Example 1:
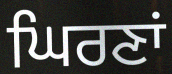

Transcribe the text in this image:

ਘਿਰਣਾਂ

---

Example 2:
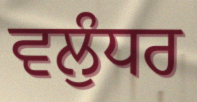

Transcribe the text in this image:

ਵਲੁੰਧਰ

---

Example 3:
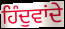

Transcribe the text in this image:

ਹਿੰਦੁਵਾਂਦੇ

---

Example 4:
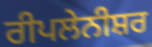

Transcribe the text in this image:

ਰੀਪਲੇਨੀਸ਼ਰ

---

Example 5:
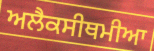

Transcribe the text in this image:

ਅਲੈਕਸੀਥਮੀਆ